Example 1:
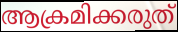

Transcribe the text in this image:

ആക്രമിക്കരുത്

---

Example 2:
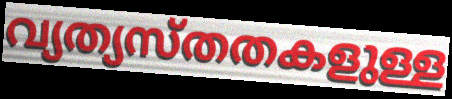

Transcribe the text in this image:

വ്യത്യസ്തതകളുള്ള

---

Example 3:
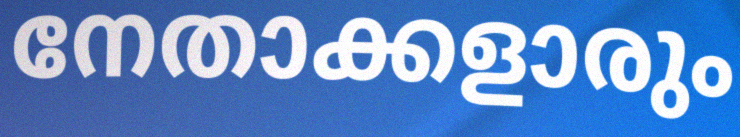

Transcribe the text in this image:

നേതാക്കളാരും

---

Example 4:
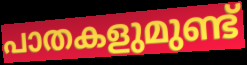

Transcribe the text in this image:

പാതകളുമുണ്ട്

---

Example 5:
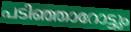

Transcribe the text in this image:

പടിഞ്ഞാറോട്ടും